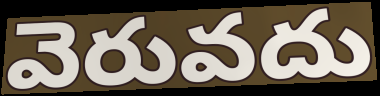
వెరువదు